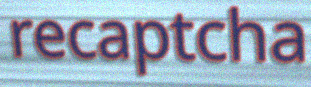
recaptcha